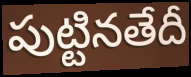
పుట్టినతేదీ